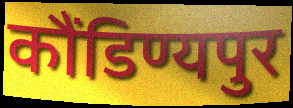
कौंडिण्यपुर